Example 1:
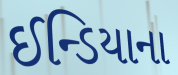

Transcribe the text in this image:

ઈન્ડિયાના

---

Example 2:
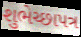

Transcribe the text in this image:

શુભેચ્છાપત્ર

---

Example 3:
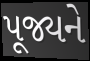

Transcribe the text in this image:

પૂજ્યને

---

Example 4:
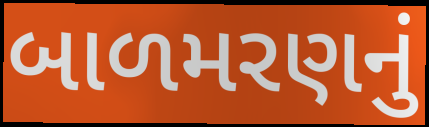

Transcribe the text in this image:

બાળમરણનું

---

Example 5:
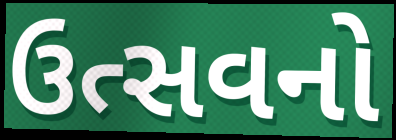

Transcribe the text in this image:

ઉત્સવનો